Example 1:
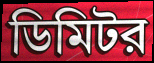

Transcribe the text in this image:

ডিমিটর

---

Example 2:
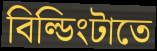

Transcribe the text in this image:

বিল্ডিংটাতে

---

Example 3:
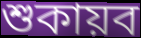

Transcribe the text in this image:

শুকায়ব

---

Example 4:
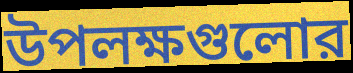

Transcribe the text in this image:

উপলক্ষগুলোর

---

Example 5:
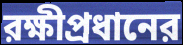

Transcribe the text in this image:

রক্ষীপ্রধানের